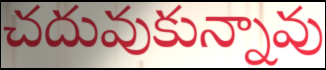
చదువుకున్నావు